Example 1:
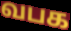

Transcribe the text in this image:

வபக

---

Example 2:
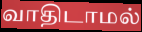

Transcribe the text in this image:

வாதிடாமல்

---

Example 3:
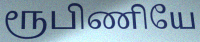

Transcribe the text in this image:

ரூபிணியே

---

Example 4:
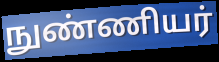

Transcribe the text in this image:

நுண்ணியர்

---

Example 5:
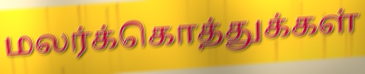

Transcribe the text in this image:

மலர்க்கொத்துக்கள்